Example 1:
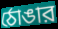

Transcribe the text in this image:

ঠোঙার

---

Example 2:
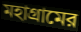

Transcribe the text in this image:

মহাগ্রামের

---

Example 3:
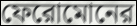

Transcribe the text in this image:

ফেরোমোনের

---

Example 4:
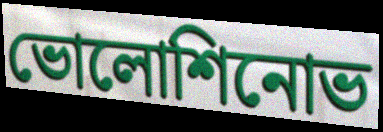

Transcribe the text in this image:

ভোলোশিনোভ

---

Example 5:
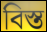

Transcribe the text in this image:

বিস্ত